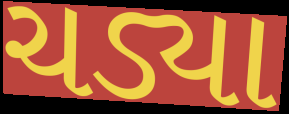
ચડ્યા